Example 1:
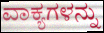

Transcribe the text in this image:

ವಾಕ್ಯಗಳನ್ನು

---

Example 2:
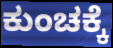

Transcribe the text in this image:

ಕುಂಚಕ್ಕೆ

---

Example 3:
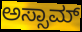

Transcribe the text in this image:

ಅಸ್ಸಾಮ್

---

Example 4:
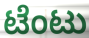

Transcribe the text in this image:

ಟೆಂಟು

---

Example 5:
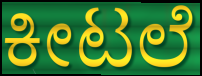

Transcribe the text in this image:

ಕೀಟಲೆ